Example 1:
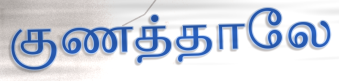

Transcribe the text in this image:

குணத்தாலே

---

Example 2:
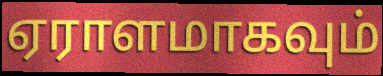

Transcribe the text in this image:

ஏராளமாகவும்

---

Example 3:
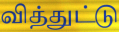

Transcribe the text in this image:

வித்துட்டு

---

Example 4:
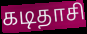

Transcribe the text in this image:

கடிதாசி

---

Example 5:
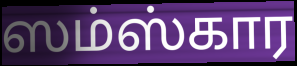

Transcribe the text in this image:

ஸம்ஸ்கார